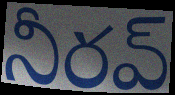
నీరవ్